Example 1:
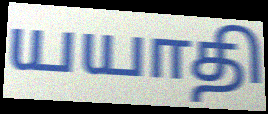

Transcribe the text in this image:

யயாதி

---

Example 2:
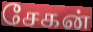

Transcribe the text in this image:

சேகன்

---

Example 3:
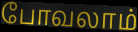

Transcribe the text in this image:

போவலாம்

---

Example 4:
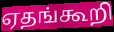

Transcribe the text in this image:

ஏதங்கூறி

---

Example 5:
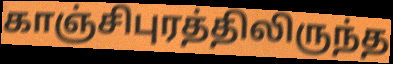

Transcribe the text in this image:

காஞ்சிபுரத்திலிருந்த